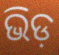
ଭିଡ଼